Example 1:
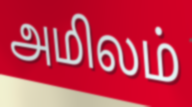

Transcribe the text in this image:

அமிலம்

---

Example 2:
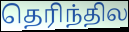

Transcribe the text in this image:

தெரிந்தில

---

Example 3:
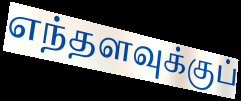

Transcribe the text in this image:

எந்தளவுக்குப்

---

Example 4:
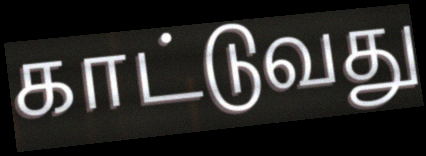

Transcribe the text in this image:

காட்டுவது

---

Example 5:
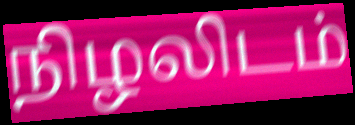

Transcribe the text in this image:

நிழலிடம்